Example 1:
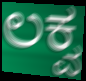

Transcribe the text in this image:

ಲಕ್ವ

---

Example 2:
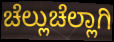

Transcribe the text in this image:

ಚೆಲ್ಲುಚೆಲ್ಲಾಗಿ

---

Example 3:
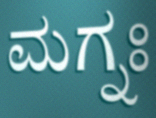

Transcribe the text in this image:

ಮಗ್ನಃ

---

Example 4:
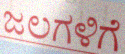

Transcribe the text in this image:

ಜಲಗಳಿಗೆ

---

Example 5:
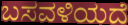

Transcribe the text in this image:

ಬಸವಳಿಯದೆ